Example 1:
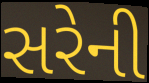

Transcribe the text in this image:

સરેની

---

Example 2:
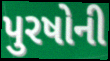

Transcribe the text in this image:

પુરષોની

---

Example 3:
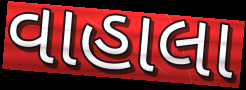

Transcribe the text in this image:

વાહાલા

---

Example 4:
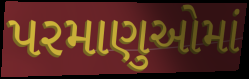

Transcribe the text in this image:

પરમાણુઓમાં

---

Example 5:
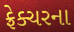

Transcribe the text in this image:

ફ્રેક્ચરના